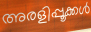
അരളിപ്പൂക്കൾ